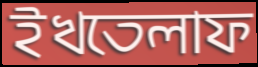
ইখতেলাফ